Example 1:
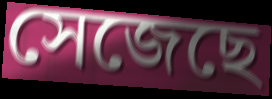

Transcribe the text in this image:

সেজেছে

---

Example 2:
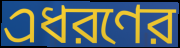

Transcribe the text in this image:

এধরণের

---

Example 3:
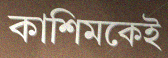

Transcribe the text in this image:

কাশিমকেই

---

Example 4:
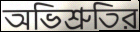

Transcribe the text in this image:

অভিশ্রুতির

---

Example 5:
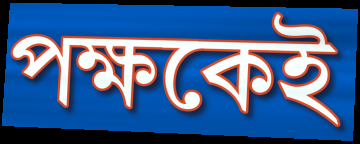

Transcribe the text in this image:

পক্ষকেই